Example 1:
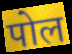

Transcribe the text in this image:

पोल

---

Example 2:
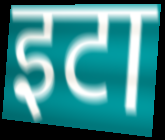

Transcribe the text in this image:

इटा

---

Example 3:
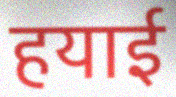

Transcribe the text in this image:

हयाई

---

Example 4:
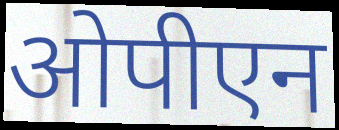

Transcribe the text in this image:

ओपीएन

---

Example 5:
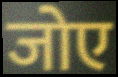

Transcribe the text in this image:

जोए